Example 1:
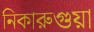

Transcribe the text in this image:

নিকারুগুয়া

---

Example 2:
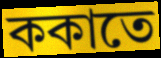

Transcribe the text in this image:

ককাতে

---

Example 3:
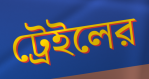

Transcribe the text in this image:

ট্রেইলের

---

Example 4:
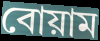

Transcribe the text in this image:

বোয়াম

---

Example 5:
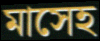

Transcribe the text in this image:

মাসেহ